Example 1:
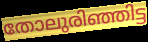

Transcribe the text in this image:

തോലുരിഞ്ഞിട്ട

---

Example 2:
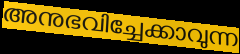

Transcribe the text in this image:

അനുഭവിച്ചേക്കാവുന്ന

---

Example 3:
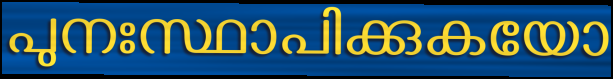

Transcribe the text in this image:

പുനഃസ്ഥാപിക്കുകയോ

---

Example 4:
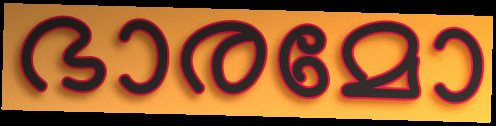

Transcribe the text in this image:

ഭാരമോ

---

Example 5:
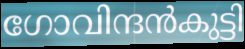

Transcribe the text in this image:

ഗോവിന്ദൻകുട്ടി